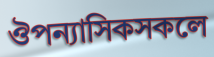
ঔপন্যাসিকসকলে